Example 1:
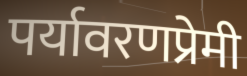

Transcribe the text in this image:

पर्यावरणप्रेमी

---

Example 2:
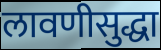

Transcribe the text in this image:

लावणीसुद्धा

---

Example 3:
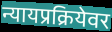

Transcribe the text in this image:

न्यायप्रक्रियेवर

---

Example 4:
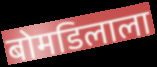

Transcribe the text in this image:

बोमडिलाला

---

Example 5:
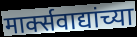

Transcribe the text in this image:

मार्क्सवाद्यांच्या